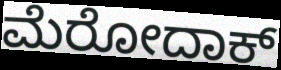
ಮೆರೋದಾಕ್